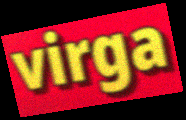
virga